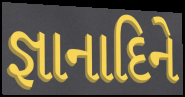
જ્ઞાનાદિને